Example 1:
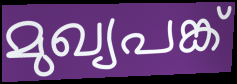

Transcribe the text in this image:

മുഖ്യപങ്ക്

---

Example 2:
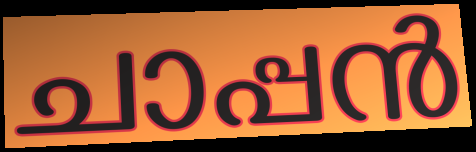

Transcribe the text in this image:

ചാപ്പൻ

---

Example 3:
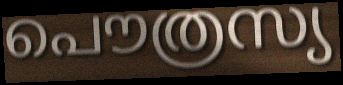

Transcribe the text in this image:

പൌത്രസ്യ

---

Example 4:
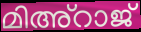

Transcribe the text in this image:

മിഅ്റാജ്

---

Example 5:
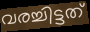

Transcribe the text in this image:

വരച്ചിട്ടത്